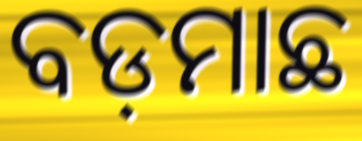
ବଡ଼ମାଛ